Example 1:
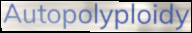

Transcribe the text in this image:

Autopolyploidy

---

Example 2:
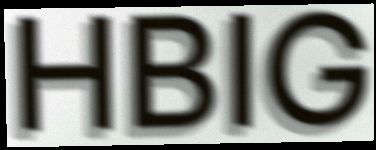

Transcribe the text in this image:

HBIG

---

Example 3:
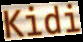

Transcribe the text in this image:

Kidi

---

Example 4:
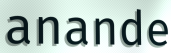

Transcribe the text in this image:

anande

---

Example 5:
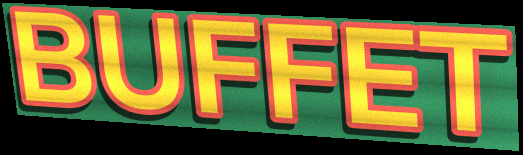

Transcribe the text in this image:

BUFFET